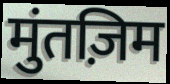
मुंतज़िम